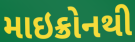
માઇક્રોનથી